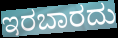
ಇರಬಾರದು